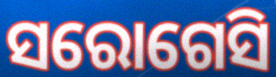
ସରୋଗେସି